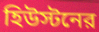
হিউস্টনের